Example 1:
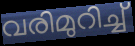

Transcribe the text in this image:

വരിമുറിച്ച്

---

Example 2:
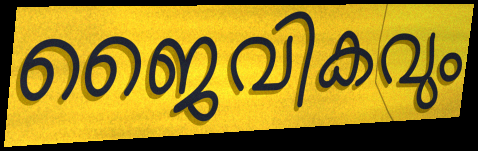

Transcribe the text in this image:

ജൈവികവും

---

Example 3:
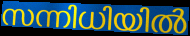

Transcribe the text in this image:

സന്നിധിയിൽ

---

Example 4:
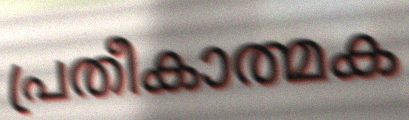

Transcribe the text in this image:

പ്രതീകാത്മക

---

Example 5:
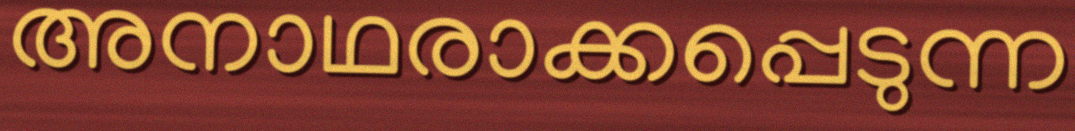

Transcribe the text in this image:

അനാഥരാക്കപ്പെടുന്ന